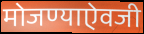
मोजण्याऐवजी